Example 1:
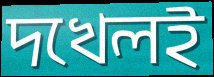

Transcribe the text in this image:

দখেলই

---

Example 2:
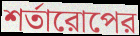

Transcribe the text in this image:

শর্তারোপের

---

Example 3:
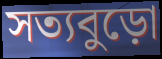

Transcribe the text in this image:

সত্যবুড়ো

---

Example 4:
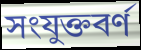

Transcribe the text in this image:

সংযুক্তবর্ণ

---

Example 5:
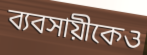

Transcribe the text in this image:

ব্যবসায়ীকেও